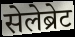
सेलेब्रेट